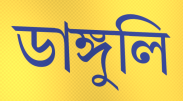
ডাঙ্গুলি